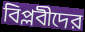
বিপ্লবীদের